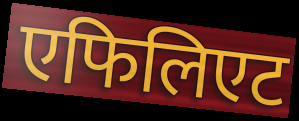
एफिलिएट